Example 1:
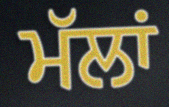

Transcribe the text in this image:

ਮੱਲਾਂ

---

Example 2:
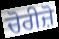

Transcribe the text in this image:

ਚੋਰੀਜ਼ੋ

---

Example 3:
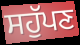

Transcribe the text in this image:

ਸਹੁੱਪਣ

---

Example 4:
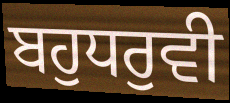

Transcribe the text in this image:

ਬਹੁਧਰੁਵੀ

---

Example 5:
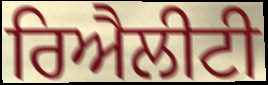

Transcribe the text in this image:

ਰਿਐਲੀਟੀ